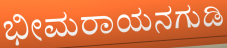
ಭೀಮರಾಯನಗುಡಿ